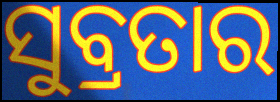
ସୁବ୍ରତାର